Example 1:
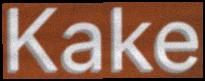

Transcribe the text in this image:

Kake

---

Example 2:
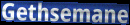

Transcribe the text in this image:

Gethsemane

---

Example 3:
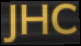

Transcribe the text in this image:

JHC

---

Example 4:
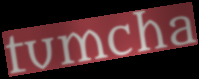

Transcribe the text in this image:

tumcha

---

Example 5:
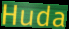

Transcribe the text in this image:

Huda